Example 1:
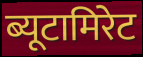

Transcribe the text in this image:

ब्यूटामिरेट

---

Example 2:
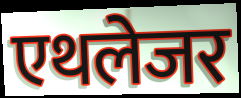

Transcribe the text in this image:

एथलेजर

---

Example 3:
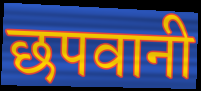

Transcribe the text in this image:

छपवानी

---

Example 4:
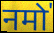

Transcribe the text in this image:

नमो॑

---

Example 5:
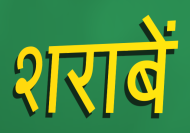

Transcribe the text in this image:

शराबें